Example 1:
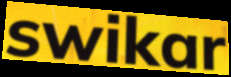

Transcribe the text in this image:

swikar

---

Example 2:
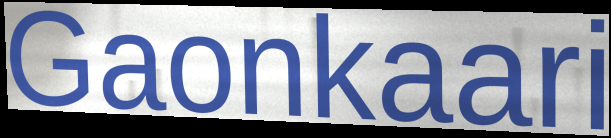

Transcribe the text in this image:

Gaonkaari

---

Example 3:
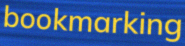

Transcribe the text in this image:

bookmarking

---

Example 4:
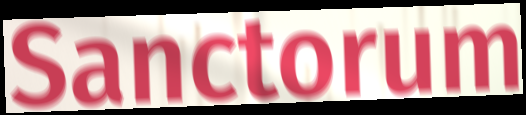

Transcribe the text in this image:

Sanctorum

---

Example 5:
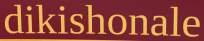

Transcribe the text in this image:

dikishonale